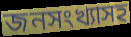
জনসংখ্যাসহ